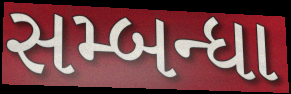
સમ્બન્ધા